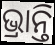
ଭ୍ରାନ୍ତି